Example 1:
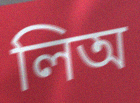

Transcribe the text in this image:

লিঅ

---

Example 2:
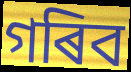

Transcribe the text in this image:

গৰিব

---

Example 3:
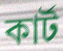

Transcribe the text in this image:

কাৰ্ট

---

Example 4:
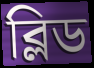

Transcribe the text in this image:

ব্লিড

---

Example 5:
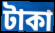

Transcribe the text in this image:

টাকা